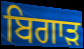
ਬਿਗਾੜ